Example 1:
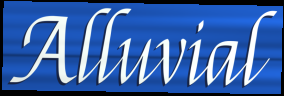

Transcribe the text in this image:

Alluvial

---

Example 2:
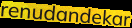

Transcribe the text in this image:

renudandekar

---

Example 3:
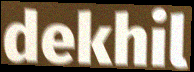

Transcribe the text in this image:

dekhil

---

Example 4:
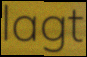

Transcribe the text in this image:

lagt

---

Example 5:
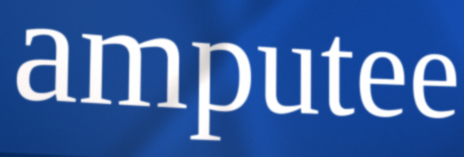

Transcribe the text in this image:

amputee